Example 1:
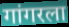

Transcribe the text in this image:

गांगरला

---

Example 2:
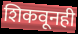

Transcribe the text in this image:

शिकवूनही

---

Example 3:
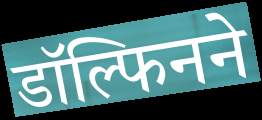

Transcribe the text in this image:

डॉल्फिनने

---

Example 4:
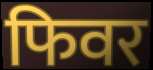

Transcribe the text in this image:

फिवर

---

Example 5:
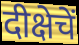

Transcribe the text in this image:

दीक्षेचें